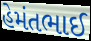
હેમંતભાઈ